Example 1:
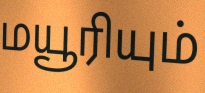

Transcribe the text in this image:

மயூரியும்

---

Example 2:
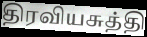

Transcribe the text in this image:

திரவியசுத்தி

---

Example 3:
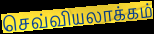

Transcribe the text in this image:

செவ்வியலாக்கம்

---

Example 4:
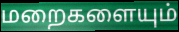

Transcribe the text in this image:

மறைகளையும்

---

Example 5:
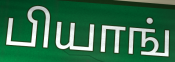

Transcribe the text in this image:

பியாங்